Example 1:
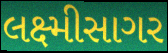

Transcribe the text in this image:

લક્ષ્મીસાગર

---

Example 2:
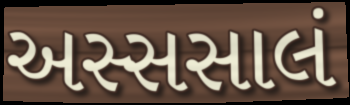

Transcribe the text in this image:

અસ્સસાલં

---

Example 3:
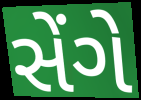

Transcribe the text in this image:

સેંગે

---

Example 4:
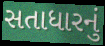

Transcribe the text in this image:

સતાધારનું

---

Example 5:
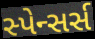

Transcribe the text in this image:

સ્પેન્સર્સ